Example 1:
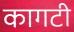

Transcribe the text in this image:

कागटी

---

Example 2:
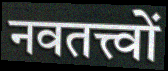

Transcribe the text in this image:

नवतत्त्वों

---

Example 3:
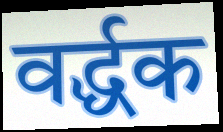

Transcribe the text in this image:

वर्द्धक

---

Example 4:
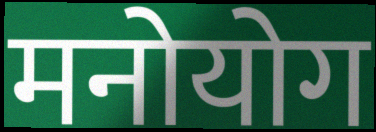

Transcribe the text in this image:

मनोयोग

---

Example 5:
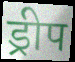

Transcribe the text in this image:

ड्रीप